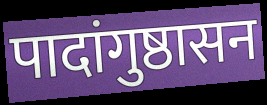
पादांगुष्ठासन